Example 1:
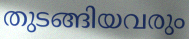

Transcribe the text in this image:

തുടങ്ങിയവരും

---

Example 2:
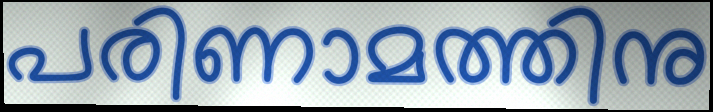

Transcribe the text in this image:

പരിണാമത്തിനു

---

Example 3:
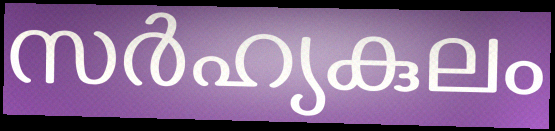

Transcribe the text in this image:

സർഹ്യകുലം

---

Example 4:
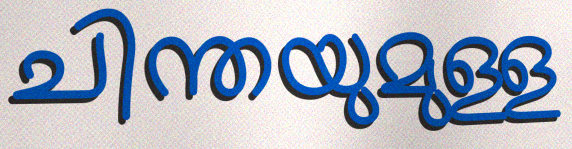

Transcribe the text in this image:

ചിന്തയുമുള്ള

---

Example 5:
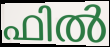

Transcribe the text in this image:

ഫിൽ